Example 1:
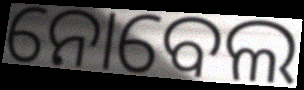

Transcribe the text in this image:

ନୋବେଲ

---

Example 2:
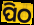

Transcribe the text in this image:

ପିଠ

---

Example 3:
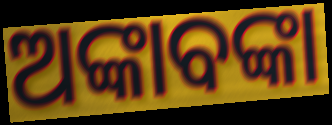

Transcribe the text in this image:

ଅଙ୍କାବଙ୍କା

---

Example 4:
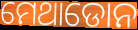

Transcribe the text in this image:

ମେଥାଡୋନ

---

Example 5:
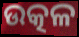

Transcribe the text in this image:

ଉତ୍କଳ